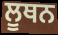
ਲੂਥਨ